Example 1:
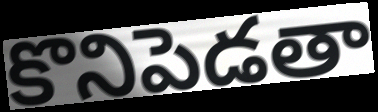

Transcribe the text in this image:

కొనిపెడతా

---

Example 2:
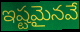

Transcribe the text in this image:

ఇష్టమైనవే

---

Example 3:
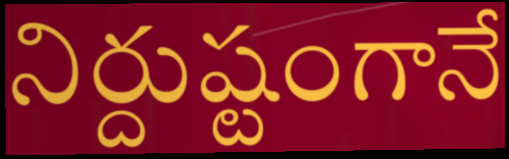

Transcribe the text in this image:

నిర్దుష్టంగానే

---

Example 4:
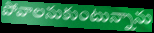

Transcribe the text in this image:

పోవాలనుకుంటున్నాను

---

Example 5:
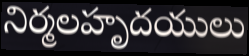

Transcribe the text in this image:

నిర్మలహృదయులు